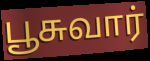
பூசுவார்